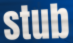
stub